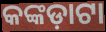
କଙ୍କଡ଼ାଟା